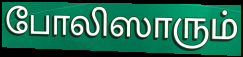
போலிஸாரும்